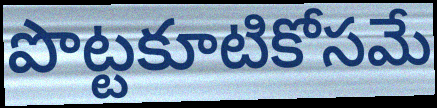
పొట్టకూటికోసమే